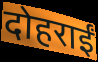
दोहराईं